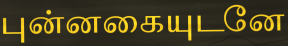
புன்னகையுடனே